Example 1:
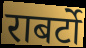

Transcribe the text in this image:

राबर्टो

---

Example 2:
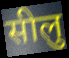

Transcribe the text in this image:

सीलु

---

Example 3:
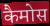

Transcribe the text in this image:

कैमोस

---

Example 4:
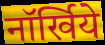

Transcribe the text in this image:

नॉर्खिये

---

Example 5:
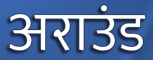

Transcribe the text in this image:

अराउंड